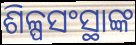
ଶିଳ୍ପସଂସ୍ଥାଙ୍କ